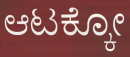
ಆಟಕ್ಕೋ